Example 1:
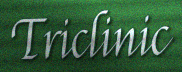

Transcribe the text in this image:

Triclinic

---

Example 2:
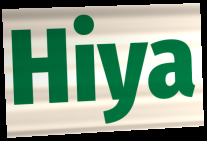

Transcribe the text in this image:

Hiya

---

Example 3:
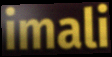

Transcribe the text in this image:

imali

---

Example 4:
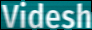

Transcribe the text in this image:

Videsh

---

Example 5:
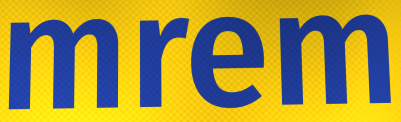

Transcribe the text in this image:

mrem